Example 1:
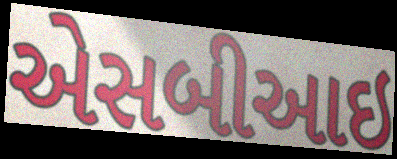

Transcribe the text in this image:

એસબીઆઇ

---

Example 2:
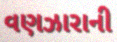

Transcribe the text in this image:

વણઝારાની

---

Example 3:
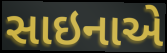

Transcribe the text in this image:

સાઇનાએ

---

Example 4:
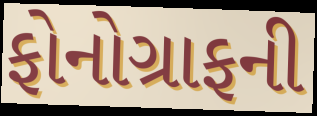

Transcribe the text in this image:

ફોનોગ્રાફની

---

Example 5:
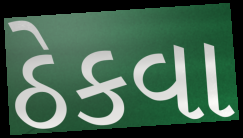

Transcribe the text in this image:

ઠેકવા